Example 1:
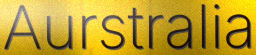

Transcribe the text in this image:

Aurstralia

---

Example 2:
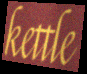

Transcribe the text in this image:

kettle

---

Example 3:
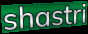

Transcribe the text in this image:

shastri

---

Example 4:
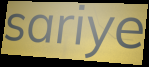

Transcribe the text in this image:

sariye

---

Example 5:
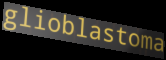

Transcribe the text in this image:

glioblastoma